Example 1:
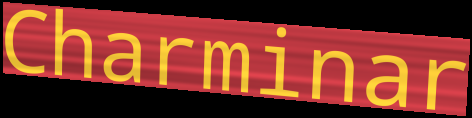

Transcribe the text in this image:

Charminar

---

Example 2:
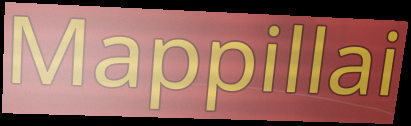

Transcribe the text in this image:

Mappillai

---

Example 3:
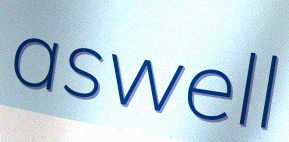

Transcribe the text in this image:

aswell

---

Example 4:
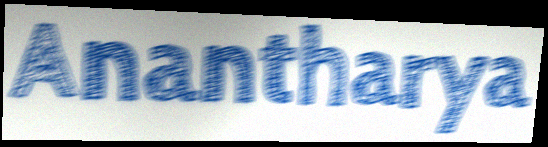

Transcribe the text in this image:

Anantharya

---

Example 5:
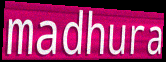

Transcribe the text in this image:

madhura